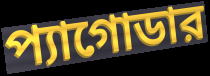
প্যাগোডার